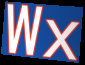
Wx